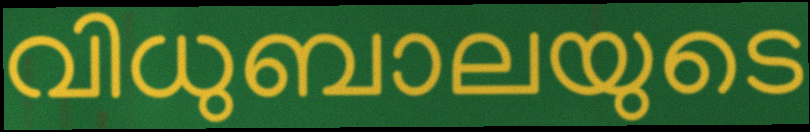
വിധുബാലയുടെ